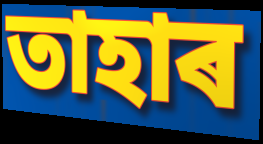
তাহাৰ